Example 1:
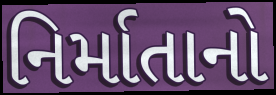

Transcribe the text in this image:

નિર્માતાનો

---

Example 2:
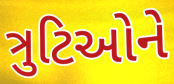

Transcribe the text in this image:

ત્રુટિઓને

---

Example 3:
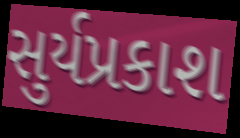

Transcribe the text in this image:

સુર્યપ્રકાશ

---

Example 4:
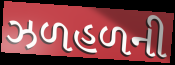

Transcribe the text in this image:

ઝળહળની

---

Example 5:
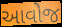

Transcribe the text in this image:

આવોજ